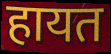
हायत